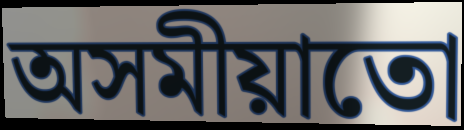
অসমীয়াতো